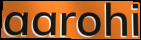
aarohi